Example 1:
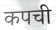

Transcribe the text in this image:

कपची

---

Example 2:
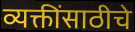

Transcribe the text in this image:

व्यक्तींसाठीचे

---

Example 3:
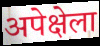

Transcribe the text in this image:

अपेक्षेला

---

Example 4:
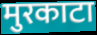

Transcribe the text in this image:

मुरकाटा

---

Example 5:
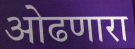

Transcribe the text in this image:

ओढणारा